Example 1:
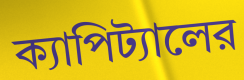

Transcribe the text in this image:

ক্যাপিট্যালের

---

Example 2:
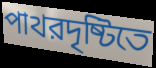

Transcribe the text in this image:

পাথরদৃষ্টিতে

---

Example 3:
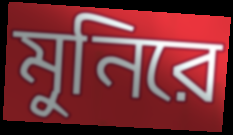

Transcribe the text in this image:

মুনিরে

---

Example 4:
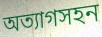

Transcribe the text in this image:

অত্যাগসহন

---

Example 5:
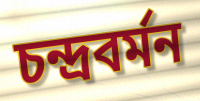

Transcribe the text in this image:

চন্দ্রবর্মন